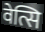
वेत्सि